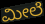
ಮೀಲೆ